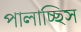
পালাচ্ছিস